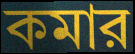
কমার